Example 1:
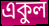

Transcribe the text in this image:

একুল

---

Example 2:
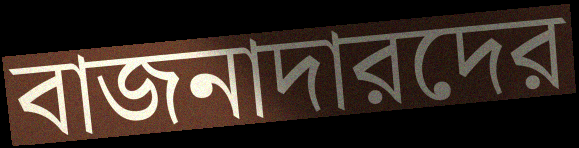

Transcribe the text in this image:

বাজনাদারদের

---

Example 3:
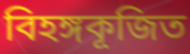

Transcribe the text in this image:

বিহঙ্গকূজিত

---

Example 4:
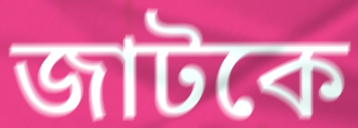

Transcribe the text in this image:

জাটকে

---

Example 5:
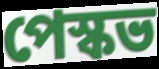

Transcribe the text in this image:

পেস্কভ